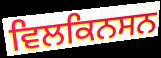
ਵਿਲਕਿਨਸਨ